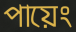
পায়েং